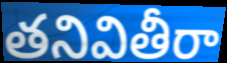
తనివితీరా